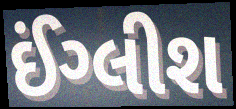
ઈંગ્લીશ